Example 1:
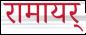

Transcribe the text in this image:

रामायर्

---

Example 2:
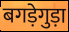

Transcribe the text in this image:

बगड़ेगुड़ा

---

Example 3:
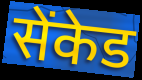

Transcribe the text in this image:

सेंकेड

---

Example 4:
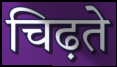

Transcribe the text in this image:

चिढ़ते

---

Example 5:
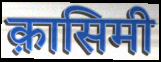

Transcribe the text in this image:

क़ासिमी